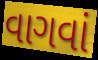
વાગવાં